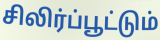
சிலிர்ப்பூட்டும்